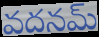
వదనమ్